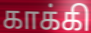
காக்கி